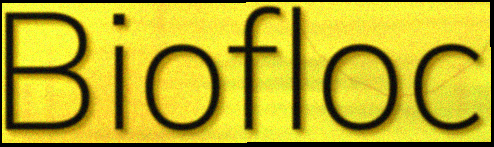
Biofloc